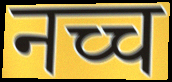
नच्च